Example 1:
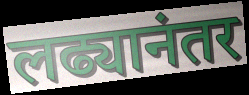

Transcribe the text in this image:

लढ्यानंतर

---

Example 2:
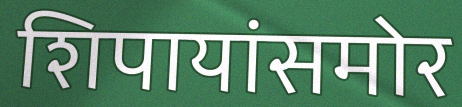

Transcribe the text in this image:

शिपायांसमोर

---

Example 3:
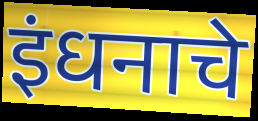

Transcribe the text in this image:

इंधनाचे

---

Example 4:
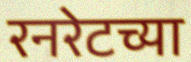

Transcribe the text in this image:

रनरेटच्या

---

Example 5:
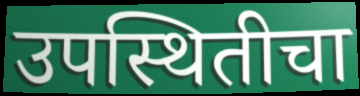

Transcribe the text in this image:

उपस्थितीचा